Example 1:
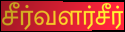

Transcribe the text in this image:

சீர்வளர்சீர்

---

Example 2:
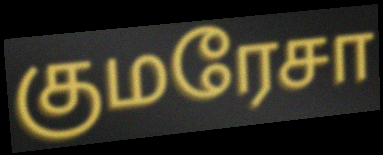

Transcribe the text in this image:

குமரேசா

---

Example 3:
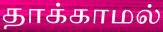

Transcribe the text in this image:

தாக்காமல்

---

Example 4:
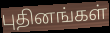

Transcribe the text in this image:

புதினங்கள்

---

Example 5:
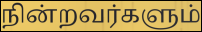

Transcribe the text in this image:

நின்றவர்களும்